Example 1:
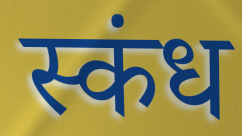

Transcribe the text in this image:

स्कंध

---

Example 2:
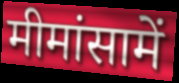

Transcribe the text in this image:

मीमांसामें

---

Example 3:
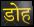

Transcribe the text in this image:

डोह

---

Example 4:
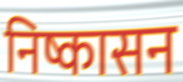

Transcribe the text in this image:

निष्कासन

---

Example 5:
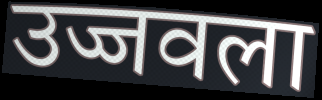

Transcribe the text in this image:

उज्जवला